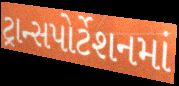
ટ્રાન્સપોર્ટેશનમાં